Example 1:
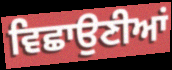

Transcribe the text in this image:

ਵਿਛਾਉਣੀਆਂ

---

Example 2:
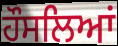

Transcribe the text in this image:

ਹੌਸਲਿਆਂ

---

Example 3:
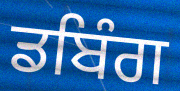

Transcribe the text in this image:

ਡਬਿੰਗ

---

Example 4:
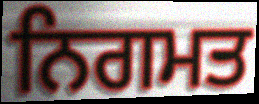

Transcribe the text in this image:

ਨਿਗਮਤ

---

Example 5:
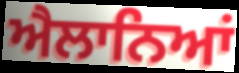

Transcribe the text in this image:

ਐਲਾਨਿਆਂ